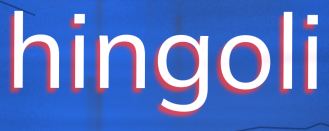
hingoli